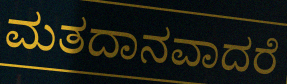
ಮತದಾನವಾದರೆ